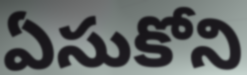
ఏసుకోని